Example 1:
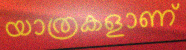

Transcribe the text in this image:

യാത്രകളാണ്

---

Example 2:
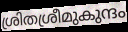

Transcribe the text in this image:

ശ്രിതശ്രീമുകുന്ദം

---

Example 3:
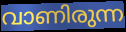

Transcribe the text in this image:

വാണിരുന്ന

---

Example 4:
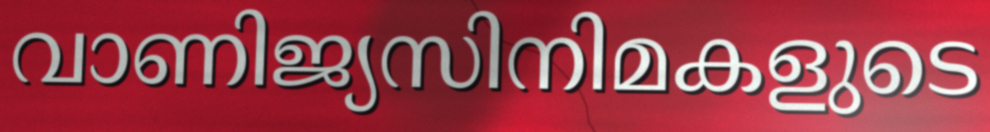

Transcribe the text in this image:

വാണിജ്യസിനിമകളുടെ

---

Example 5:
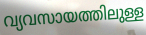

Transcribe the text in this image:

വ്യവസായത്തിലുള്ള